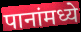
पानांमध्ये